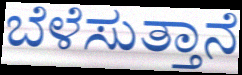
ಬೆಳೆಸುತ್ತಾನೆ